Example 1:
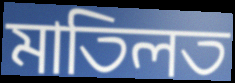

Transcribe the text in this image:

মাতিলত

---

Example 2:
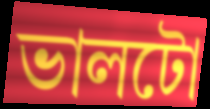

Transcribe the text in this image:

ভালটো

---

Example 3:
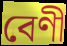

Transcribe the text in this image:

বেণী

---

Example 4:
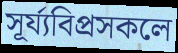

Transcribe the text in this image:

সূৰ্য্যবিপ্ৰসকলে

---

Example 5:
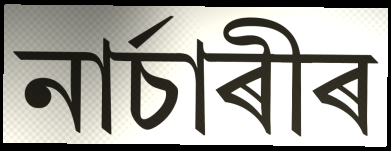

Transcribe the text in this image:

নাৰ্চাৰীৰ